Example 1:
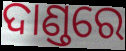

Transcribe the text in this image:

ଦାଣ୍ଡରେ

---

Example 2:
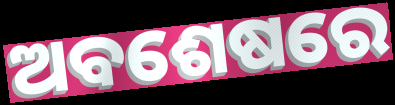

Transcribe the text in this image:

ଅବଶେଷରେ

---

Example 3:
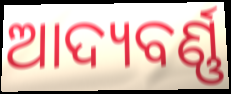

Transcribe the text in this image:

ଆଦ୍ୟବର୍ଣ୍ଣ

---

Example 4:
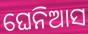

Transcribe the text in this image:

ଘେନିଆସ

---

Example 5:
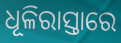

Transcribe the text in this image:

ଧୂଳିରାସ୍ତାରେ